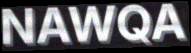
NAWQA